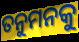
ତନୁମନକୁ